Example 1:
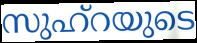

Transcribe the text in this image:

സുഹ്റയുടെ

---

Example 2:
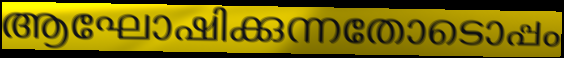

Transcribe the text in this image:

ആഘോഷിക്കുന്നതോടൊപ്പം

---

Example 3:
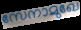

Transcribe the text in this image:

സേനാമുഖേ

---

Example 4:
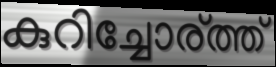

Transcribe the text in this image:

കുറിച്ചോര്ത്ത്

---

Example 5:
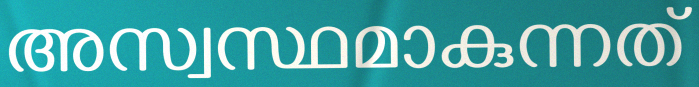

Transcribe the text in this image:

അസ്വസ്ഥമാകുന്നത്